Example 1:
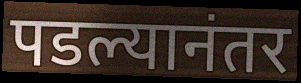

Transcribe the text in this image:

पडल्यानंतर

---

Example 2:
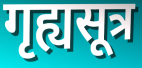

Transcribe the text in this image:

गृह्यसूत्र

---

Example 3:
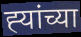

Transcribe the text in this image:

ह्‍यांच्या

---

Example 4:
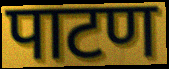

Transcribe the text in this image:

पाटण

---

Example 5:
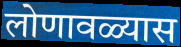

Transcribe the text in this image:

लोणावळ्यास